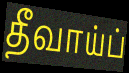
தீவாய்ப்